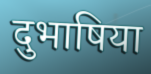
दुभाषिया